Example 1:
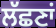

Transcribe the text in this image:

ਲੱਛਣਾਂ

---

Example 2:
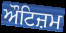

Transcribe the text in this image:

ਔਟਿਜ਼ਮ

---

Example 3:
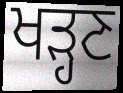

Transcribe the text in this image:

ਖੜ੍ਹਣ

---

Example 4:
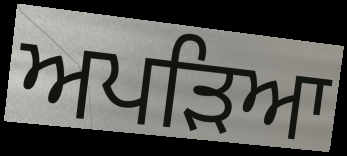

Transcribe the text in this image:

ਅਪੜਿਆ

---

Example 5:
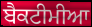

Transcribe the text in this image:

ਬੈਕਟੀਮੀਆ